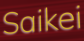
Saikei